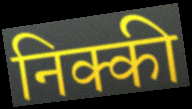
निक्‍की